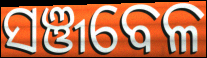
ସଞ୍ଜବେଳ